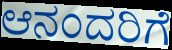
ಆನಂದರಿಗೆ